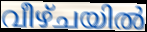
വീഴ്ചയിൽ